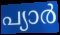
പ്യാർ